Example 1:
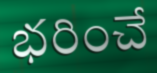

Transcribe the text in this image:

భరించే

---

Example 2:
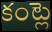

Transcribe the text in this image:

కంట్లె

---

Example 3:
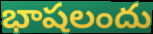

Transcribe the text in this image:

భాషలందు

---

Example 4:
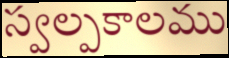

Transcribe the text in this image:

స్వల్పకాలము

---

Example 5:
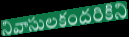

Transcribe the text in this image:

నివాసులకందరికిని